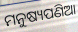
ମନୁଷ୍ୟପଣିଆ